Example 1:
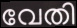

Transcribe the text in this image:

വേതി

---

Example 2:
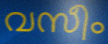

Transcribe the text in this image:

വസീം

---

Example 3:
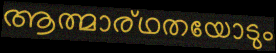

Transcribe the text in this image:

ആത്മാര്ഥതയോടും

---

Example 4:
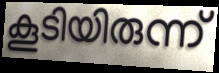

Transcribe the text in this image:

കൂടിയിരുന്ന്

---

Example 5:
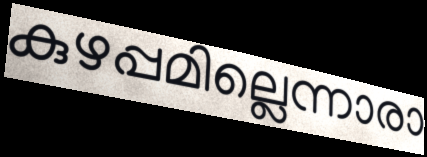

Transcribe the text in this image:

കുഴപ്പമില്ലെന്നാരാ